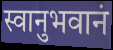
स्वानुभवानं